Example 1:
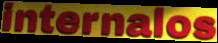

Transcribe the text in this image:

internalos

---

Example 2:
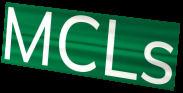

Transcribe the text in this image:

MCLs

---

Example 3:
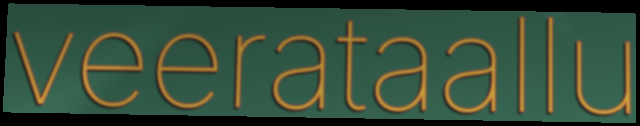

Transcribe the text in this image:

veerataallu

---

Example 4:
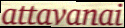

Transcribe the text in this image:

attavanai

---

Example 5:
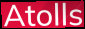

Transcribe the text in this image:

Atolls